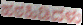
ಹಠಹಿಡಿದಳು